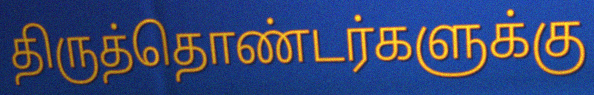
திருத்தொண்டர்களுக்கு